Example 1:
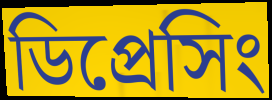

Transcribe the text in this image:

ডিপ্রেসিং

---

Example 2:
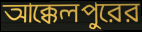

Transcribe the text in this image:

আক্কেলপুরের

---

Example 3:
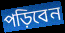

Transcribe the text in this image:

পড়িবেন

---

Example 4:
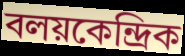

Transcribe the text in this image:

বলয়কেন্দ্রিক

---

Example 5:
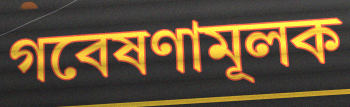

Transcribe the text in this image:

গবেষণামূলক